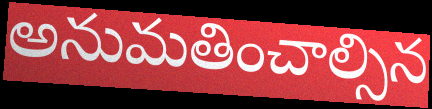
అనుమతించాల్సిన